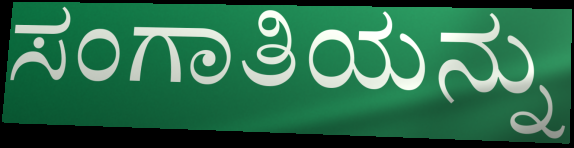
ಸಂಗಾತಿಯನ್ನು